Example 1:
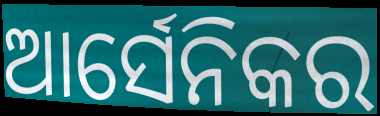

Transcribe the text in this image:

ଆର୍ସେନିକର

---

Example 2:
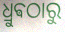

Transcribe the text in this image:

ଧ୍ରୁଵଠାରୁ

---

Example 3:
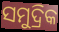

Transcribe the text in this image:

ସମୁଦ୍ରିକ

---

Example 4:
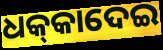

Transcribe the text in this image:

ଧକ୍‌କାଦେଇ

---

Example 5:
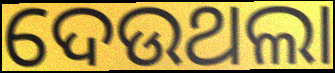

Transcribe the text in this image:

ଦେଉଥଲା